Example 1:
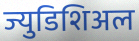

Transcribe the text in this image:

ज्युडिशिअल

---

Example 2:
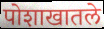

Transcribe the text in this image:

पोशाखातले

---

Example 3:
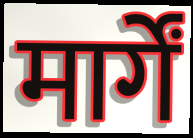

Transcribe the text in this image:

मार्गें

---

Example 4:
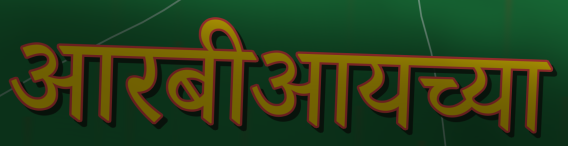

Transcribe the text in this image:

आरबीआयच्या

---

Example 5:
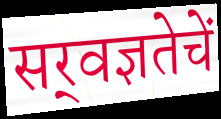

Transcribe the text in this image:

सर्वज्ञतेचें